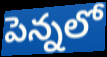
పెన్నలో